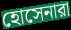
হোসেনারা